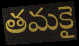
తమకై